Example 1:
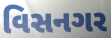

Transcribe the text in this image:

વિસનગર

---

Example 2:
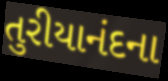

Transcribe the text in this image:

તુરીયાનંદના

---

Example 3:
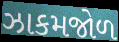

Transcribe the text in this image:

ઝાકમજોળ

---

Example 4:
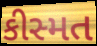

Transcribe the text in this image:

કીસ્મત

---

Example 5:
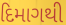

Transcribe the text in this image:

દિમાગથી